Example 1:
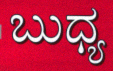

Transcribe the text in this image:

ಬುಧ್ಯ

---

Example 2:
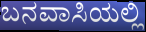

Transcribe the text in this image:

ಬನವಾಸಿಯಲ್ಲಿ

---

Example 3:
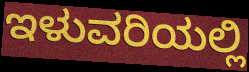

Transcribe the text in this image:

ಇಳುವರಿಯಲ್ಲಿ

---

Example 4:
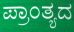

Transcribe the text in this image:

ಪ್ರಾಂತ್ಯದ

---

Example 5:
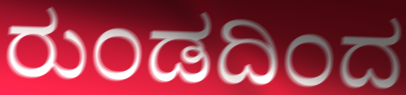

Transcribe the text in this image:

ರುಂಡದಿಂದ